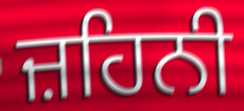
ਜ਼ਹਿਨੀ